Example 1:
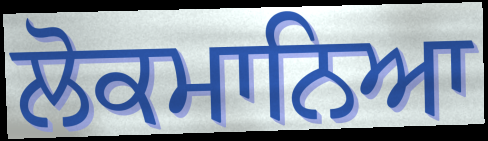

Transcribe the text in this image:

ਲੋਕਮਾਨਿਆ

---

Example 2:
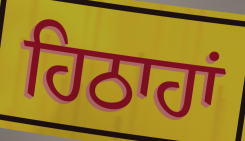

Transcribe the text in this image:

ਹਿਠਾਹਾਂ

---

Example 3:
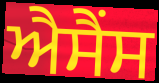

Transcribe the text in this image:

ਐਸੈਂਸ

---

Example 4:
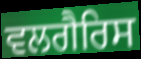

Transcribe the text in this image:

ਵਲਗੈਰਿਸ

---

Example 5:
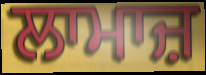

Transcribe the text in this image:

ਲਾਮਾਜ਼